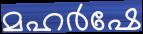
മഹർഷേ